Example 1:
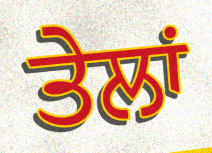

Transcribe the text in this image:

ਤੇਲਾਂ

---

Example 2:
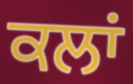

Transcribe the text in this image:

ਕਲਾਂ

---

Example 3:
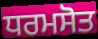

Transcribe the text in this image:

ਧਰਮਸੋਤ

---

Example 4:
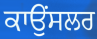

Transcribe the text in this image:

ਕਾਉਂਸਲਰ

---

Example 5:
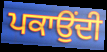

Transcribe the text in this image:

ਪਕਾਉਂਦੀ